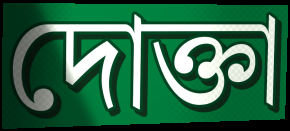
দোক্তা